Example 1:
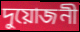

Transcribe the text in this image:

দুয়োজনী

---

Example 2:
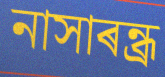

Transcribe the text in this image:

নাসাৰন্ধ্ৰ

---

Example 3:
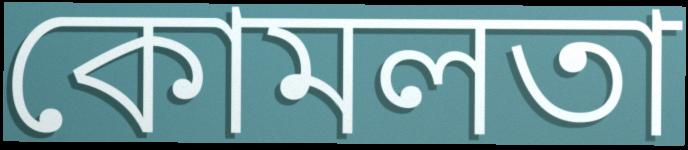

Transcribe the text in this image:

কোমলতা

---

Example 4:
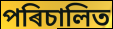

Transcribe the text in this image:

পৰিচালিত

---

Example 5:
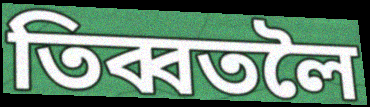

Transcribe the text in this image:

তিব্বতলৈ